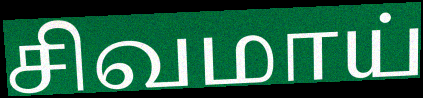
சிவமாய்